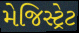
મેજિસ્ટ્રેટ